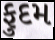
ફુદમ